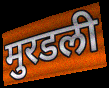
मुरडली